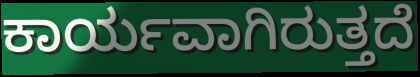
ಕಾರ್ಯವಾಗಿರುತ್ತದೆ